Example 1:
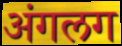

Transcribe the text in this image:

अंगलग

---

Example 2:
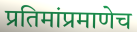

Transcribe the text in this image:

प्रतिमांप्रमाणेच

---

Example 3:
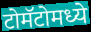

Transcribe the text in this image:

टोमॅटोमध्ये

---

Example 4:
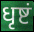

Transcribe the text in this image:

धृष्टं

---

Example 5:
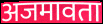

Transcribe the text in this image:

अजमावता